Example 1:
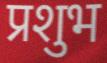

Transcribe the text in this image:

प्रशुभ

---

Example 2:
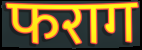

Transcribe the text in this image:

फराग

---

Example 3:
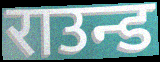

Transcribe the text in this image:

राउन्ड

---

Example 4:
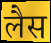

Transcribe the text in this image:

लैस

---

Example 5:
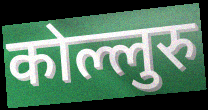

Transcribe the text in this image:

कोल्लुरु